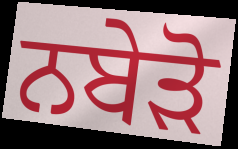
ਨਬੇੜੋ